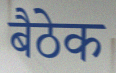
बैठेक